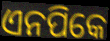
ଏନପିକେ